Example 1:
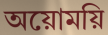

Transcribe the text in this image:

অয়োময়ি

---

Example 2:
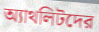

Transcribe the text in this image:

অ্যাথলিটদের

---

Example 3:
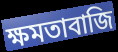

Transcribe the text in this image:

ক্ষমতাবাজি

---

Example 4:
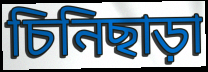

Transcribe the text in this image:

চিনিছাড়া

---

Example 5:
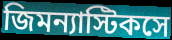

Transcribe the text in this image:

জিমন্যাস্টিকসে